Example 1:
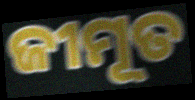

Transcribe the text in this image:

ଜୀମୂତ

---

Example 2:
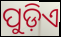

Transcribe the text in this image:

ପୁଡ଼ିଏ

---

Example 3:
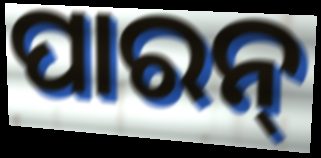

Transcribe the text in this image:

ପାରନ୍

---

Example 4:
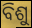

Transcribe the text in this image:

ବିଶୁ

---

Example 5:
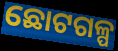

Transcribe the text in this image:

ଛୋଟଗଳ୍ପ